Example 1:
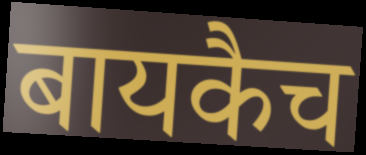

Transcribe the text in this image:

बायकैच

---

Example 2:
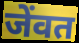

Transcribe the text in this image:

जेंवत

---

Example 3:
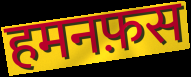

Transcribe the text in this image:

हमनफ़स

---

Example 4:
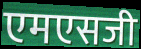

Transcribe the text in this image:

एमएसजी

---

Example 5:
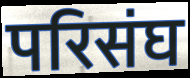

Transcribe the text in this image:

परिसंघ